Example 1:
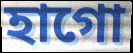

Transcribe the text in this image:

হাগো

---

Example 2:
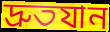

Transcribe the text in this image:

দ্রুতযান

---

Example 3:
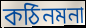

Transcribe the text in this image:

কঠিনমনা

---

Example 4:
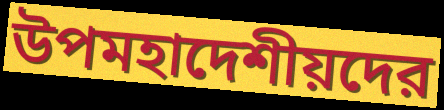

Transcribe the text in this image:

উপমহাদেশীয়দের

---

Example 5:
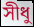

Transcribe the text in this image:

সীধু